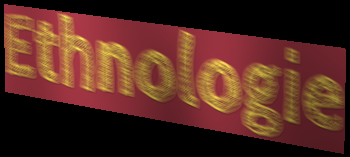
Ethnologie